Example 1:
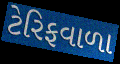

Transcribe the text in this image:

ટેરિફવાળા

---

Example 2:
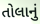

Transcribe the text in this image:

તોલાનું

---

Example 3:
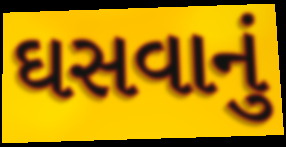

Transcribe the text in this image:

ઘસવાનું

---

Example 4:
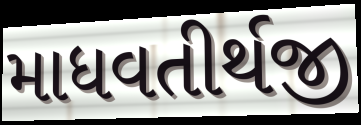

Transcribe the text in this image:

માધવતીર્થજી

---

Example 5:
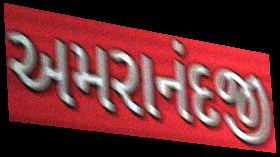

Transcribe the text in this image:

અમરાનંદજી